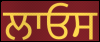
ਲਾਓਸ